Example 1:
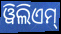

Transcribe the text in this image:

ୱିଲିଏମ୍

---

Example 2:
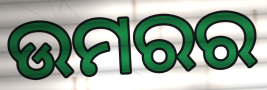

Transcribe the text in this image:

ଉମରର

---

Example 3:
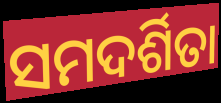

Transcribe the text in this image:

ସମଦର୍ଶିତା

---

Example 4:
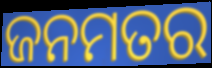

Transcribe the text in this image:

ଜନମତର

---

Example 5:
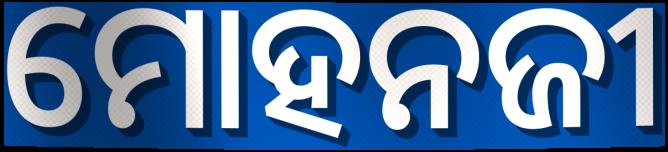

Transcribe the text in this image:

ମୋହନଜୀ